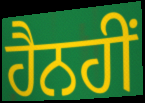
ਹੈਨਹੀਂ